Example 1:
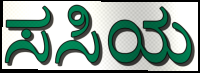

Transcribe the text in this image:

ಸಸಿಯ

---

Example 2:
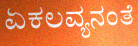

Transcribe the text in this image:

ಏಕಲವ್ಯನಂತೆ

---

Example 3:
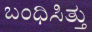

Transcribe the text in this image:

ಬಂಧಿಸಿತ್ತು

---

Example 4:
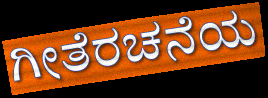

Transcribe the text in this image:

ಗೀತೆರಚನೆಯ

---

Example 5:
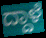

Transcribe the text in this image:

ದ್ದಾಳೆ